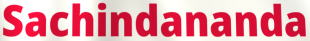
Sachindananda